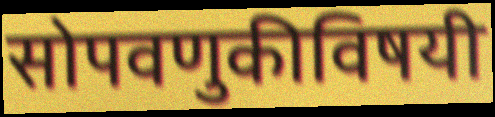
सोपवणुकीविषयी